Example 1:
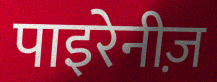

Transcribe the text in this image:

पाइरेनीज़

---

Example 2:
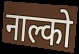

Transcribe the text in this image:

नाल्को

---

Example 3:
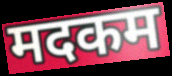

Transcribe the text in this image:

मदकम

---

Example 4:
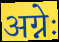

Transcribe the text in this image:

अग्नेः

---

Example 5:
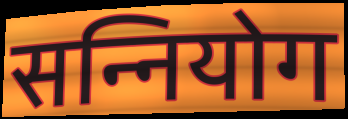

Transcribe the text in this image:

सन्नियोग